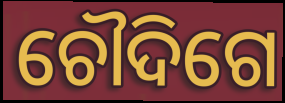
ଚୌଦିଗେ